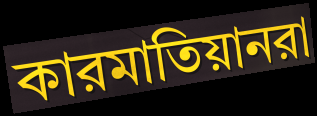
কারমাতিয়ানরা